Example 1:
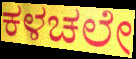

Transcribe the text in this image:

ಕಳಚಲೇ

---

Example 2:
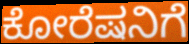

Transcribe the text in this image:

ಕೋರೆಷನಿಗೆ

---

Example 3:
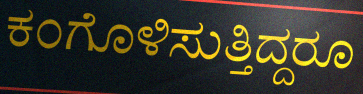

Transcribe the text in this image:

ಕಂಗೊಳಿಸುತ್ತಿದ್ದರೂ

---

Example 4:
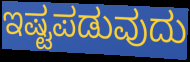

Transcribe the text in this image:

ಇಷ್ಟಪಡುವುದು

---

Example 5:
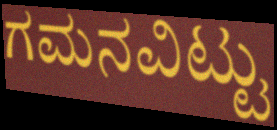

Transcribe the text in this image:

ಗಮನವಿಟ್ಟು